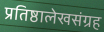
प्रतिष्ठालेखसंग्रह